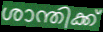
ശാന്തിക്ക്